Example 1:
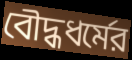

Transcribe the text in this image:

বৌদ্ধধর্মের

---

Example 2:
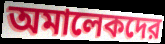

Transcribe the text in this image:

অমালেকদের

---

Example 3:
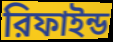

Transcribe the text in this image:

রিফাইন্ড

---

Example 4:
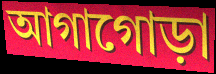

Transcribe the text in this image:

আগাগোড়া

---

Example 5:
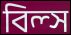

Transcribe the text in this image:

বিল্স